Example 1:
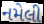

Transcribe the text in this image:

નમેલી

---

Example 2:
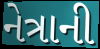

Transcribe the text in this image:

નેત્રાની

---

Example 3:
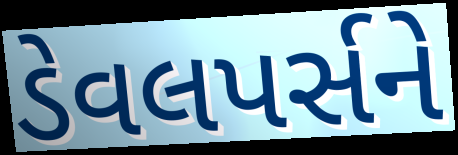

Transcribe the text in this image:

ડેવલપર્સને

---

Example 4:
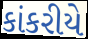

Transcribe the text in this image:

કાંકરીયે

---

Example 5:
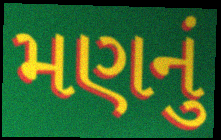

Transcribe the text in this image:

મણનું